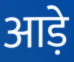
आड़े